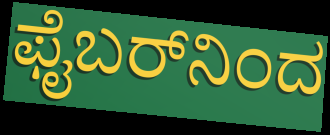
ಫೈಬರ್‌ನಿಂದ